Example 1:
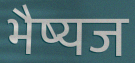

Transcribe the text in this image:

भैष्यज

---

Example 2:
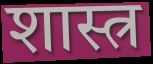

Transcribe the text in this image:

शास्त्र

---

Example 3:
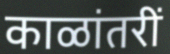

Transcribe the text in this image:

काळांतरीं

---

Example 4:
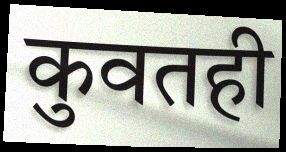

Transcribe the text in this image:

कुवतही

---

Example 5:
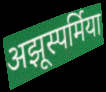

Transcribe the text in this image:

अझूस्पर्मिया